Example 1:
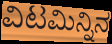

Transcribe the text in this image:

ವಿಟಮಿನ್ನಿನ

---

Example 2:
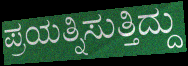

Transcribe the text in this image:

ಪ್ರಯತ್ನಿಸುತ್ತಿದ್ದು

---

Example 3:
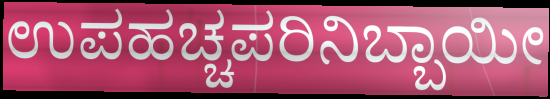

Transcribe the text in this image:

ಉಪಹಚ್ಚಪರಿನಿಬ್ಬಾಯೀ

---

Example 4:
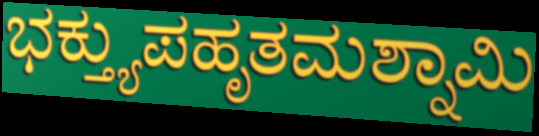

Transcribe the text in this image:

ಭಕ್ತ್ಯುಪಹೃತಮಶ್ನಾಮಿ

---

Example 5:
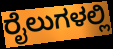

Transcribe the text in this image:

ರೈಲುಗಳಲ್ಲಿ